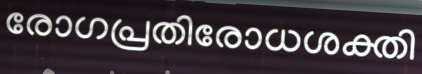
രോഗപ്രതിരോധശക്തി